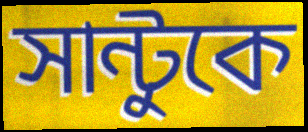
সান্টুকে